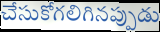
చేసుకోగలిగినప్పుడు